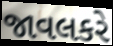
જાવલકરે